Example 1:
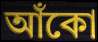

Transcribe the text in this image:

আঁকো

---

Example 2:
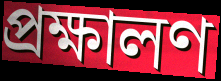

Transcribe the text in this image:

প্রক্ষালণ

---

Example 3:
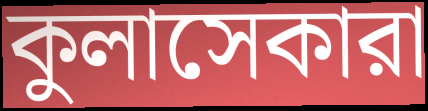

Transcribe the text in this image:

কুলাসেকারা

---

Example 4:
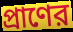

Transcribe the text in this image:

প্রাণের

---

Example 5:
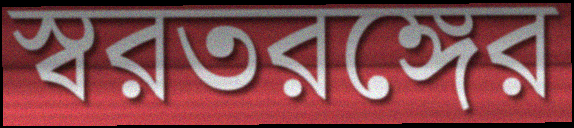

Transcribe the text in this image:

স্বরতরঙ্গের